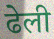
ढेली